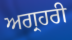
ਅਗ੍ਰਹਰੀ